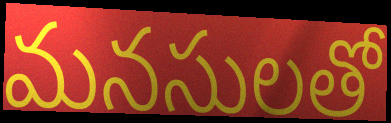
మనసులతో